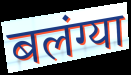
बलंग्या